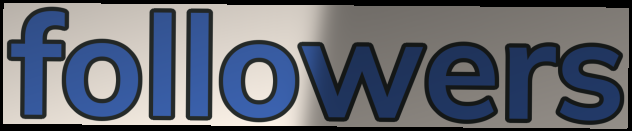
followers